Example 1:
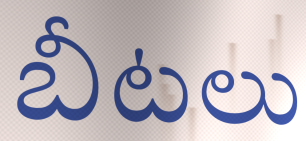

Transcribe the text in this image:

బీటలు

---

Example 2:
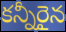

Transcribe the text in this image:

కన్నీరైన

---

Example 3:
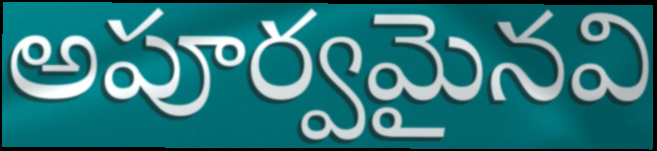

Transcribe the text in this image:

అపూర్వమైనవి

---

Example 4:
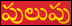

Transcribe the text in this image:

పులుపు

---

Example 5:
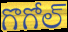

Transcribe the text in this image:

గొగోల్